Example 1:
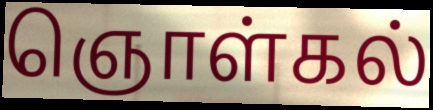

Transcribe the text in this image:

ஞொள்கல்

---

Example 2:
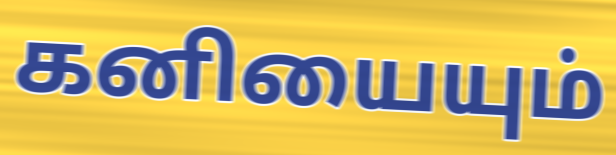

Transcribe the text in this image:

கனியையும்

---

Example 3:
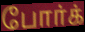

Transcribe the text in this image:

போர்க்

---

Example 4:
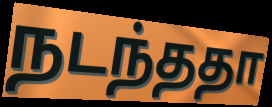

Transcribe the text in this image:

நடந்ததா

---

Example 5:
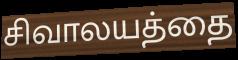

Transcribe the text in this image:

சிவாலயத்தை